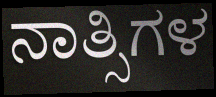
ನಾತ್ಸಿಗಳ